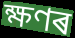
ক্ষণৰ